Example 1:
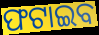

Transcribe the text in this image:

ଫଟାଇବ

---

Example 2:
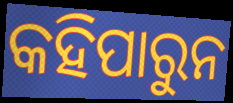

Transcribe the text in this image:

କହିପାରୁନ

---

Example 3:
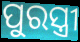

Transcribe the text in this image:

ପୁରସ୍ତ୍ରୀ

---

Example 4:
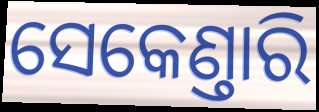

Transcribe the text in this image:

ସେକେଣ୍ତାରି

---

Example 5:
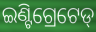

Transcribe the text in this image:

ଇଣ୍ଟିଗ୍ରେଟେଡ୍